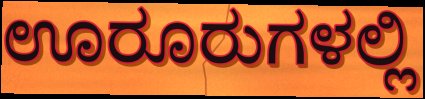
ಊರೂರುಗಳಲ್ಲಿ